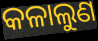
କଳାଲୁଣ